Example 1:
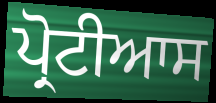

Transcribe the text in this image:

ਪ੍ਰੋਟੀਆਸ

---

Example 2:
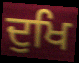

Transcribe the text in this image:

ਦੁਖਿ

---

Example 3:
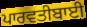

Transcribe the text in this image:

ਪਾਰਵਤੀਬਾਈ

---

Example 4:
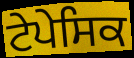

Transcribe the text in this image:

ਟੇਪੇਸਿਕ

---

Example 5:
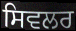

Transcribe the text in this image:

ਸਿਵਲਰ